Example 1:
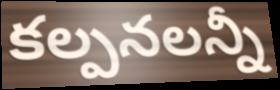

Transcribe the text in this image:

కల్పనలన్నీ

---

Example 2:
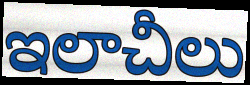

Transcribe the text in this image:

ఇలాచీలు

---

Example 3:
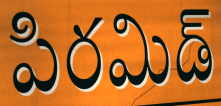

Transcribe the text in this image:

పిరమిడ్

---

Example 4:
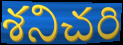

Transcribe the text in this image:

శనిచరి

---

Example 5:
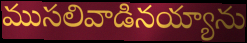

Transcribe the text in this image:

ముసలివాడినయ్యాను